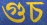
গুচ